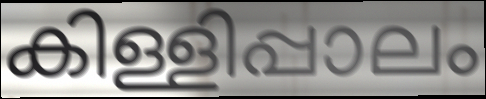
കിള്ളിപ്പാലം